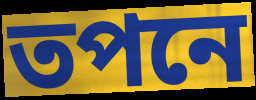
তপনে